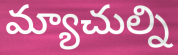
మ్యాచుల్ని